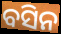
ବସିନ